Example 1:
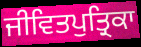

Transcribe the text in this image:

ਜੀਵਿਤਪੁਤ੍ਰਿਕਾ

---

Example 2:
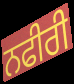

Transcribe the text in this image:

ਨਫੀਰੀ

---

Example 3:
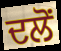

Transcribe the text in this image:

ਦਲੋਂ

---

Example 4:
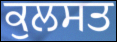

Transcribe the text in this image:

ਕੁਲਸਤ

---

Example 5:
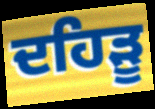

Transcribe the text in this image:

ਦਹਿੜੂ